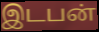
இடபன்